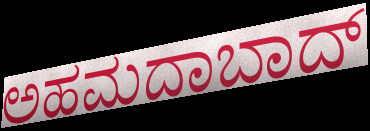
ಅಹಮದಾಬಾದ್